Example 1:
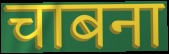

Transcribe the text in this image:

चाबना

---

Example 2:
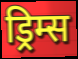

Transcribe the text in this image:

ड्रिम्स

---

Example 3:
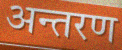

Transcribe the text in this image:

अन्तरण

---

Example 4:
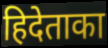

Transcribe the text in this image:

हिदेताका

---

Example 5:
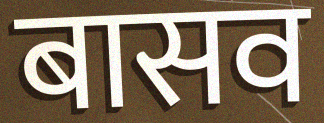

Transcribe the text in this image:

बासव